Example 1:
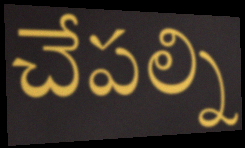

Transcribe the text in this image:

చేపల్ని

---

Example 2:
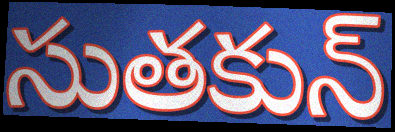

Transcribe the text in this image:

సుతకున్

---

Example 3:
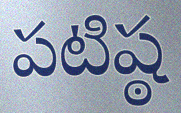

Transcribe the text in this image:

పటిష్ఠ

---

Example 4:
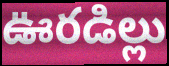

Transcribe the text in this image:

ఊరడిల్లు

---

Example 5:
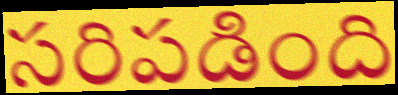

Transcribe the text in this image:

సరిపడింది